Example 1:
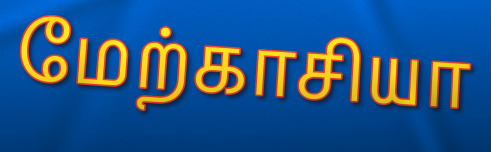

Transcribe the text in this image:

மேற்காசியா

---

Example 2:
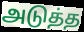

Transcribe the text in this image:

அடுத்த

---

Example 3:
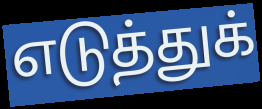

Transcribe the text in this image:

எடுத்துக்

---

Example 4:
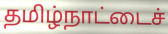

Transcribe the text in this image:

தமிழ்நாட்டைச்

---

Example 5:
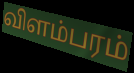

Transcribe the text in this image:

விளம்பரம்